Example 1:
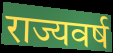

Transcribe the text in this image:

राज्यवर्ष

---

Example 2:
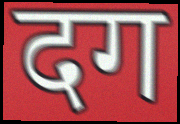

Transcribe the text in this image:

दग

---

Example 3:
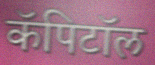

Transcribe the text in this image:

कॅपिटॉल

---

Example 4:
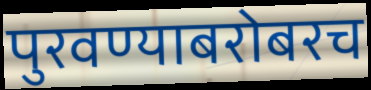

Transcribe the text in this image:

पुरवण्याबरोबरच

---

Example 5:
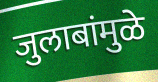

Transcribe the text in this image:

जुलाबांमुळे